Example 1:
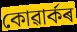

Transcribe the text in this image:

কোৱাৰ্কৰ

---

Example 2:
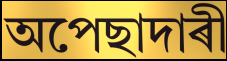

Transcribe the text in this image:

অপেছাদাৰী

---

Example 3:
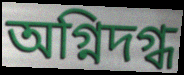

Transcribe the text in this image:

অগ্নিদগ্ধ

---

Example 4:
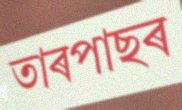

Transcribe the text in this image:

তাৰপাছৰ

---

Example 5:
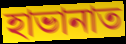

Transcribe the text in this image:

হাভানাত